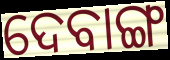
ଦେବାଙ୍ଗ